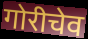
गोरीचेव